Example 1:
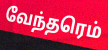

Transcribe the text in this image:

வேந்தரெம்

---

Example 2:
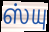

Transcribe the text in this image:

ஸ்யு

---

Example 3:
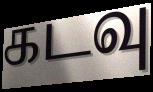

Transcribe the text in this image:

கடவு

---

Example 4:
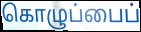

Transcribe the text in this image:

கொழுப்பைப்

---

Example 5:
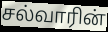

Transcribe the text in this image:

சல்வாரின்